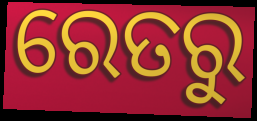
ରେତରୁ